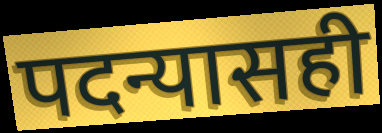
पदन्यासही